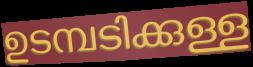
ഉടമ്പടിക്കുള്ള